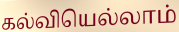
கல்வியெல்லாம்